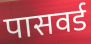
पासवर्ड